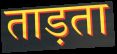
ताड़ता